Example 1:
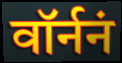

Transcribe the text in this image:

वॉर्ननं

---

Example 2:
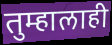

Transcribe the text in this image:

तुम्हालाही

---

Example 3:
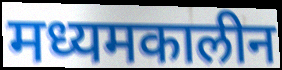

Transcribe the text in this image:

मध्यमकालीन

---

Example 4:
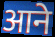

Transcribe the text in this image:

आने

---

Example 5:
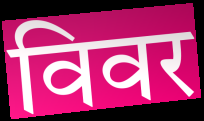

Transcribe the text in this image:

विवर